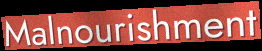
Malnourishment